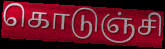
கொடுஞ்சி